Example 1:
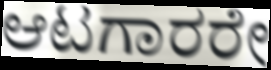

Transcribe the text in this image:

ಆಟಗಾರರೇ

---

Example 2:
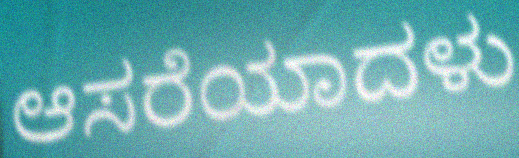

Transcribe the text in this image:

ಆಸರೆಯಾದಳು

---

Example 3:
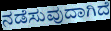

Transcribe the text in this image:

ನಡೆಸುವುದಾಗಿದೆ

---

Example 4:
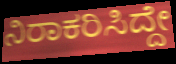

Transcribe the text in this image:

ನಿರಾಕರಿಸಿದ್ದೇ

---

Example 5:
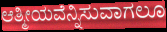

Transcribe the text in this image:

ಆತ್ಮೀಯವೆನ್ನಿಸುವಾಗಲೂ